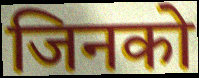
जिनको